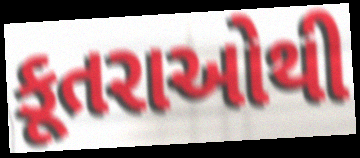
કૂતરાઓથી